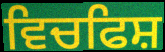
ਵਿਚਫਿਸ਼